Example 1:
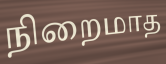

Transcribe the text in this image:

நிறைமாத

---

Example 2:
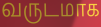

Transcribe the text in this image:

வருடமாக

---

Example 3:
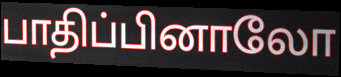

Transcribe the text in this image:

பாதிப்பினாலோ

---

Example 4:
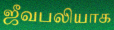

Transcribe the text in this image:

ஜீவபலியாக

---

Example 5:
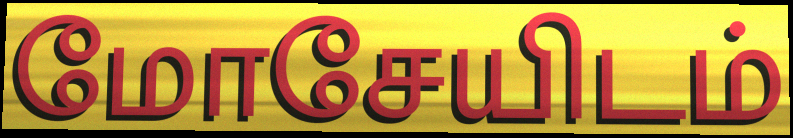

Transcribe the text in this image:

மோசேயிடம்